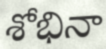
శోభినా